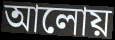
আলোয়